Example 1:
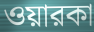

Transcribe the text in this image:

ওয়ারকা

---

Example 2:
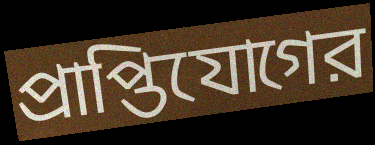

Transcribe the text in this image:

প্রাপ্তিযোগের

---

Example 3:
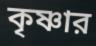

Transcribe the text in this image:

কৃষ্ণার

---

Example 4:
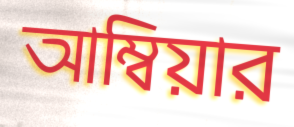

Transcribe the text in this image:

আম্বিয়ার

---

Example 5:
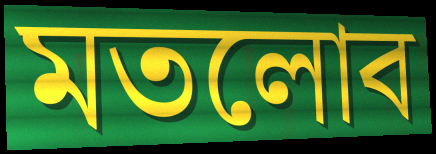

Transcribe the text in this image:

মতলোব